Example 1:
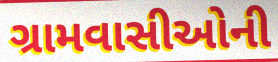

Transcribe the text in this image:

ગ્રામવાસીઓની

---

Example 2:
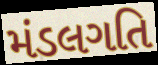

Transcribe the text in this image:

મંડલગતિ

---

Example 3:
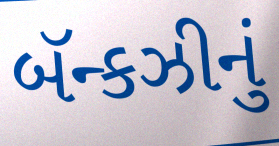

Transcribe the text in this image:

બૅન્કઝીનું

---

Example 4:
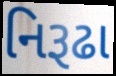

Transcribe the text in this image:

નિરૂઢા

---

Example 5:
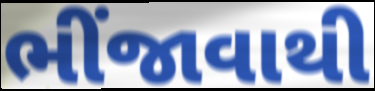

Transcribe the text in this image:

ભીંજાવાથી